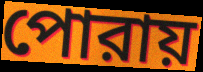
পোরায়